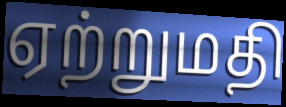
ஏற்றுமதி